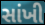
સાંખી